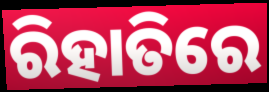
ରିହାତିରେ